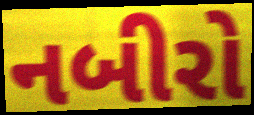
નબીરો